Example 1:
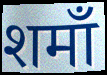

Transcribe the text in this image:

शमाँ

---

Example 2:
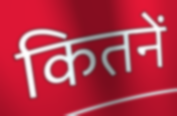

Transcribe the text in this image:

कितनें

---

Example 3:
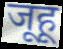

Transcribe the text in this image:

जूहू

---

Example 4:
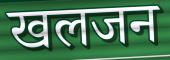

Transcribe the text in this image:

खलजन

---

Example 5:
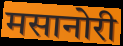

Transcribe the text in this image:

मसानोरी